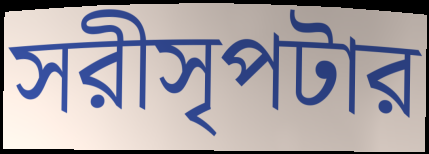
সরীসৃপটার